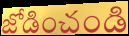
జోడించండి